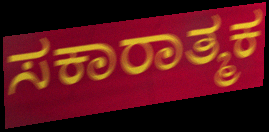
ಸಕಾರಾತ್ಮಕ